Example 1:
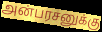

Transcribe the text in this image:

அன்பரசனுக்கு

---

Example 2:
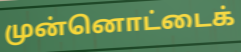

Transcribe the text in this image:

முன்னொட்டைக்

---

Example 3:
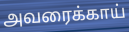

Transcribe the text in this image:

அவரைக்காய்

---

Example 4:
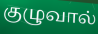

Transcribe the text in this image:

குழுவால்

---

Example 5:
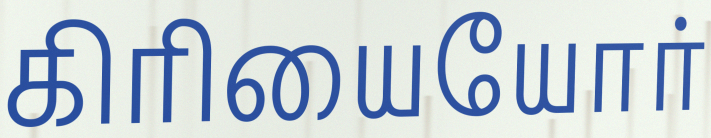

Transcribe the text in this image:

கிரியையோர்